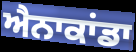
ਐਨਾਕਾਂਡਾ